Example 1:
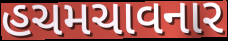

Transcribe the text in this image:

હચમચાવનાર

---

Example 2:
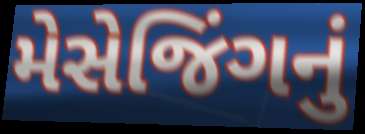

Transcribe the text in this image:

મેસેજિંગનું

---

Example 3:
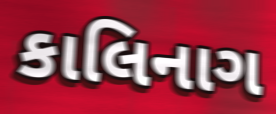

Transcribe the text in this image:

કાલિનાગ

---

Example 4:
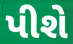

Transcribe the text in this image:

પીશે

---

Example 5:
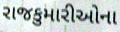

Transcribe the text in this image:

રાજકુમારીઓના